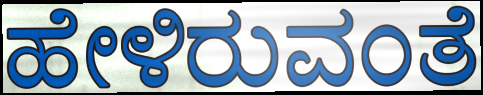
ಹೇಳಿರುವಂತೆ